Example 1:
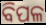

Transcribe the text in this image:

ବିପଳ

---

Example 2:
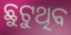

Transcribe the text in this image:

ଛୁଟୁଥିବ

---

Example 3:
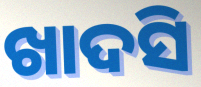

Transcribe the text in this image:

ଖାଦସି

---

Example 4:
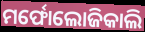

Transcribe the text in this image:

ମର୍ଫୋଲୋଜିକାଲି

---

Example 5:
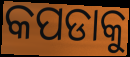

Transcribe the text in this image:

କପଡାକୁ